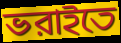
ভরাইতে